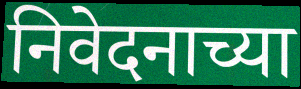
निवेदनाच्या